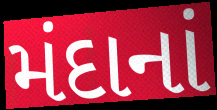
મંદાનાં